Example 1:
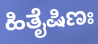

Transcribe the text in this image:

ಹಿತೈಷಿಣಃ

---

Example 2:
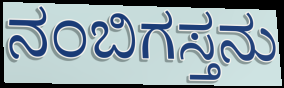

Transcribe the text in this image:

ನಂಬಿಗಸ್ತನು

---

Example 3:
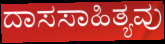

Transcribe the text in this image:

ದಾಸಸಾಹಿತ್ಯವು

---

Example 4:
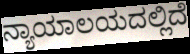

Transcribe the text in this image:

ನ್ಯಾಯಾಲಯದಲ್ಲಿದೆ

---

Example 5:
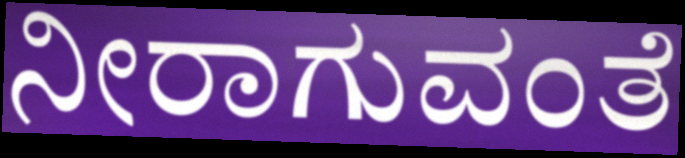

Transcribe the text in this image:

ನೀರಾಗುವಂತೆ